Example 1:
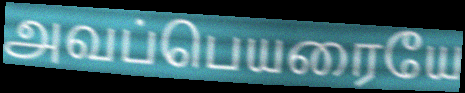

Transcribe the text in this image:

அவப்பெயரையே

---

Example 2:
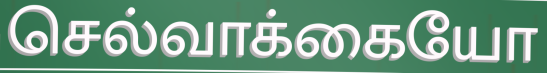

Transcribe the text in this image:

செல்வாக்கையோ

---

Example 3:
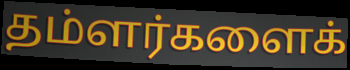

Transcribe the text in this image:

தம்ளர்களைக்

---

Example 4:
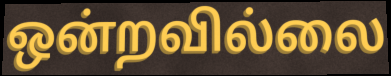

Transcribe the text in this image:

ஒன்றவில்லை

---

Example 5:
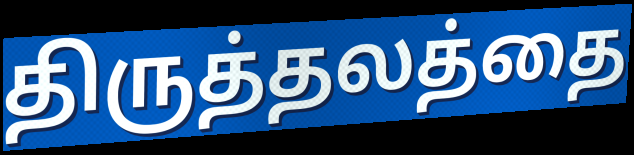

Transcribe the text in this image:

திருத்தலத்தை